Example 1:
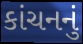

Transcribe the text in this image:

કાંચનનું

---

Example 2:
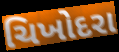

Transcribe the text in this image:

ચિખોદરા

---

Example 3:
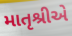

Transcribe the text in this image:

માતૃશ્રીએ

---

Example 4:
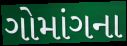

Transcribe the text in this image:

ગોમાંગના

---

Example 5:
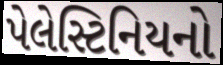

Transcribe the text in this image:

પેલેસ્ટિનિયનો